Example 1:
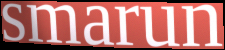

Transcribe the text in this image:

smarun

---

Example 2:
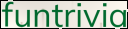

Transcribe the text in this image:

funtrivia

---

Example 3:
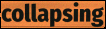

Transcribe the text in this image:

collapsing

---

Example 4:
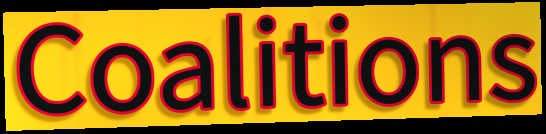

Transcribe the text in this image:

Coalitions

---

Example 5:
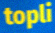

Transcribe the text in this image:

topli